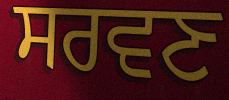
ਸਰਵਣ